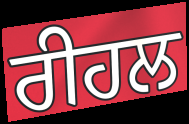
ਰੀਹਲ